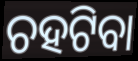
ଚହଟିବା